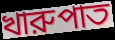
খাৰুপাত